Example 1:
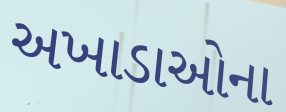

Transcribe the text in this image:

અખાડાઓના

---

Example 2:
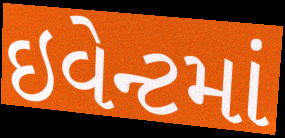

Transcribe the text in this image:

ઇવેન્ટમાં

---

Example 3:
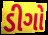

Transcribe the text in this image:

ડીગો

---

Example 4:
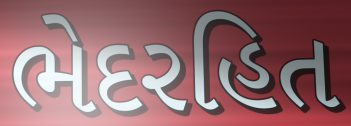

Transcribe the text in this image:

ભેદરહિત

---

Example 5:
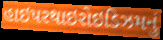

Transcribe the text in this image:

હાઇપરથાઇરોઇડિઝમનું